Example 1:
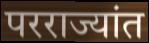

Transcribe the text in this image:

परराज्यांत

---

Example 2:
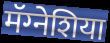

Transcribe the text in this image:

मॅग्‍नेशिया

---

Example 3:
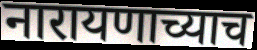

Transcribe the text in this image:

नारायणाच्याच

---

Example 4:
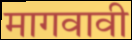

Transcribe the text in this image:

मागवावी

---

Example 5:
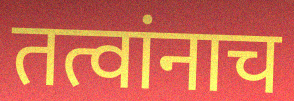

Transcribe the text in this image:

तत्वांनाच